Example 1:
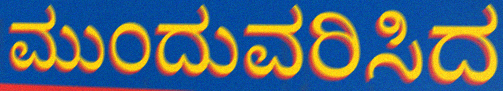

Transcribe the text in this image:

ಮುಂದುವರಿಸಿದ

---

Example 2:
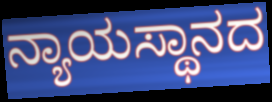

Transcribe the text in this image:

ನ್ಯಾಯಸ್ಥಾನದ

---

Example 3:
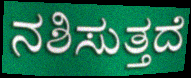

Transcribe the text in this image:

ನಶಿಸುತ್ತದೆ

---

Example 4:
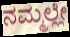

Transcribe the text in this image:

ನಮ್ಮಲ್ಲೇ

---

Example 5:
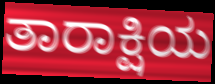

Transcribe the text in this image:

ತಾರಾಕ್ಷಿಯ